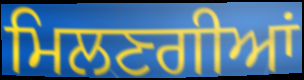
ਮਿਲਣਗੀਆਂ